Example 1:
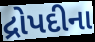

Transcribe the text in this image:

દ્રોપદીના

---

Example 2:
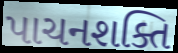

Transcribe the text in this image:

પાચનશક્તિ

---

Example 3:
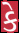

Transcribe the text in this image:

કે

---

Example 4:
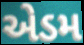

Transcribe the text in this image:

એડમ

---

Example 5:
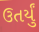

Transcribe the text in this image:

ઉતર્યું